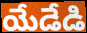
యేడేడి